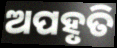
ଅପହୃତି